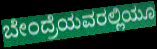
ಬೇಂದ್ರೆಯವರಲ್ಲಿಯೂ